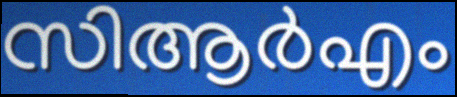
സിആർഎം